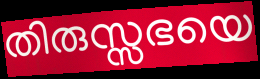
തിരുസ്സഭയെ